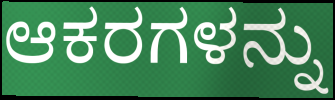
ಆಕರಗಳನ್ನು